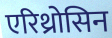
एरिथ्रोसिन